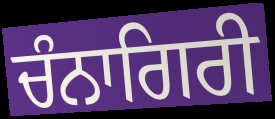
ਚੰਨਾਗਿਰੀ